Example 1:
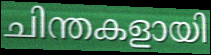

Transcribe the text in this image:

ചിന്തകളായി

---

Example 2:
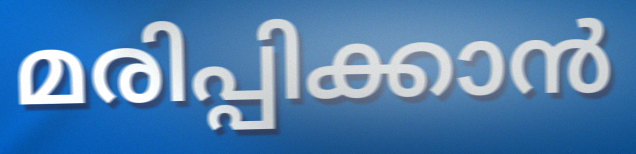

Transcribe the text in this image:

മരിപ്പിക്കാൻ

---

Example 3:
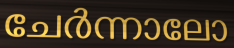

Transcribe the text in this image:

ചേർന്നാലോ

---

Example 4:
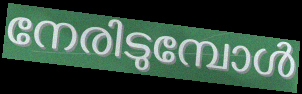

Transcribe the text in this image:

നേരിടുമ്പോൾ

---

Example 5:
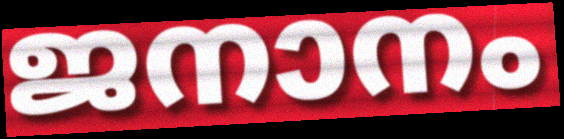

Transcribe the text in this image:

ജനാനം